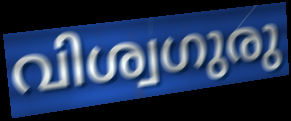
വിശ്വഗുരു